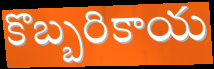
కొబ్బరికాయ